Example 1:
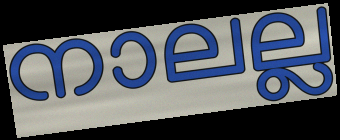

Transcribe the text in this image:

നാലല്ല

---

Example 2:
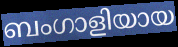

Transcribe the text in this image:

ബംഗാളിയായ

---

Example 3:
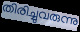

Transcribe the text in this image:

തിരിച്ചുവരുന്നു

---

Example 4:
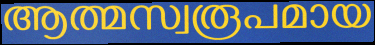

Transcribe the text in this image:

ആത്മസ്വരൂപമായ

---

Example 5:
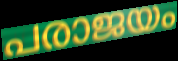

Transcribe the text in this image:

പരാജയം